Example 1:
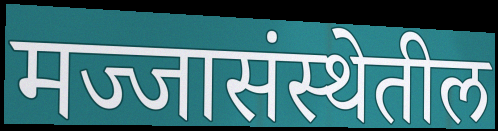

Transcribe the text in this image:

मज्जासंस्थेतील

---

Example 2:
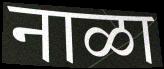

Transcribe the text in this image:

नाळा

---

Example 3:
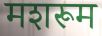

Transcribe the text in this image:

मशरूम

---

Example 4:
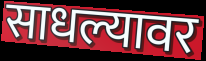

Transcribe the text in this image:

साधल्यावर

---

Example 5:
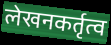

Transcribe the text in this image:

लेखनकर्तृत्व